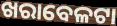
ଖରାବେଳଟା